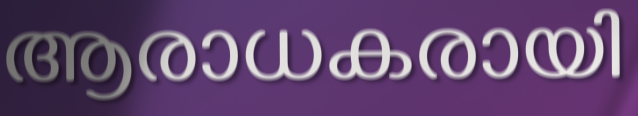
ആരാധകരായി